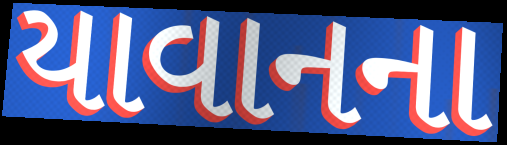
યાવાનના